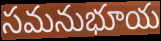
సమనుభూయ